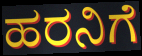
ಹರನಿಗೆ